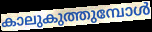
കാലുകുത്തുമ്പോൾ